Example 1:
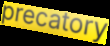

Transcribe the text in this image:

precatory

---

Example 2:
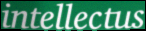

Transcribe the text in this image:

intellectus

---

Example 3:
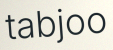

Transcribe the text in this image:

tabjoo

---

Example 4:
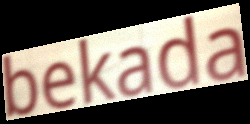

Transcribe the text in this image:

bekada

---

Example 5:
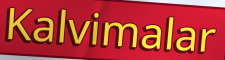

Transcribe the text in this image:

Kalvimalar